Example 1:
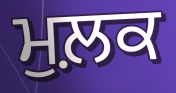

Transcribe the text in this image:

ਮੁਲ਼ਕ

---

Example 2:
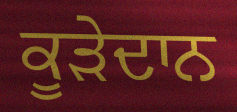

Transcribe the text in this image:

ਕੂੜੇਦਾਨ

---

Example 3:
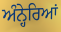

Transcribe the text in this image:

ਅੰਨ੍ਹੇਰਿਆਂ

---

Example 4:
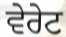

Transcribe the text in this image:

ਵੇਰੇਟ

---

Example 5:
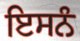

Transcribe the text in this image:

ਇਸਨੰ